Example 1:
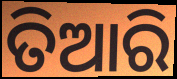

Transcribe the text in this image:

ତିଆରି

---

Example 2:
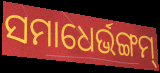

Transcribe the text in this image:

ସମାଧେର୍ଭଙ୍ଗମ୍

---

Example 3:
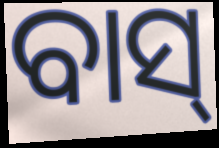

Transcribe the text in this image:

ବାସ୍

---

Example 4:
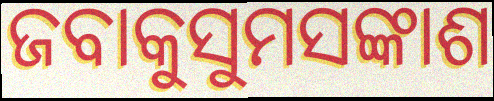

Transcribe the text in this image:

ଜବାକୁସୁମସଙ୍କାଶ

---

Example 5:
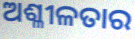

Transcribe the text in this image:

ଅଶ୍ଳୀଳତାର